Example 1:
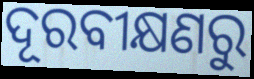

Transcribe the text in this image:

ଦୂରବୀକ୍ଷଣରୁ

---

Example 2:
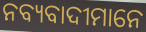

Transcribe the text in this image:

ନବ୍ୟବାଦୀମାନେ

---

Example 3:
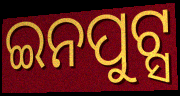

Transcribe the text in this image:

ଇନପୁଟ୍ସ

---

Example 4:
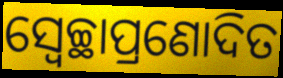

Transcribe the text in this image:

ସ୍ୱେଚ୍ଛାପ୍ରଣୋଦିତ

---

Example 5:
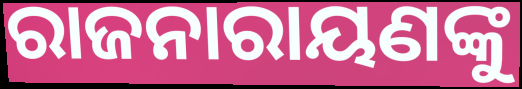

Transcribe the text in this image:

ରାଜନାରାୟଣଙ୍କୁ